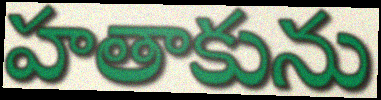
హతాకును